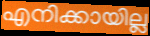
എനിക്കായില്ല